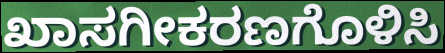
ಖಾಸಗೀಕರಣಗೊಳಿಸಿ